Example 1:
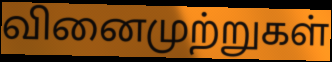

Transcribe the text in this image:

வினைமுற்றுகள்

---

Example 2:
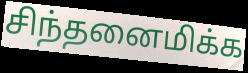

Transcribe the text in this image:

சிந்தனைமிக்க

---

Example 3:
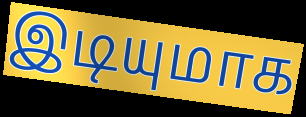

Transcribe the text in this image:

இடியுமாக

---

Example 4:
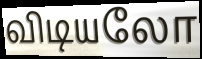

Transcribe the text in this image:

விடியலோ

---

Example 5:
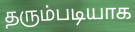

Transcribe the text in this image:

தரும்படியாக